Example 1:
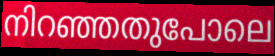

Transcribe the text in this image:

നിറഞ്ഞതുപോലെ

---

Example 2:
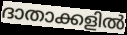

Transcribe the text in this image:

ദാതാക്കളിൽ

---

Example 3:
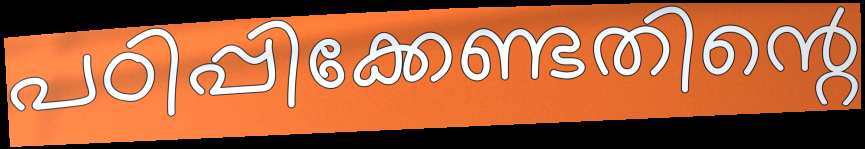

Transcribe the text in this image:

പഠിപ്പിക്കേണ്ടതിന്റെ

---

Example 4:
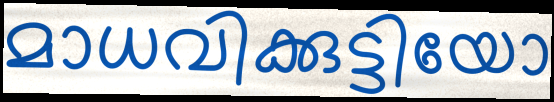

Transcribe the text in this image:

മാധവിക്കുട്ടിയോ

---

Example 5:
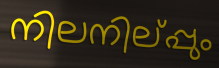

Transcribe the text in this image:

നിലനില്പ്പും